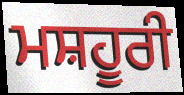
ਮਸ਼ਹੂਰੀ